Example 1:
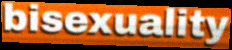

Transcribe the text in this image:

bisexuality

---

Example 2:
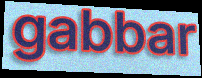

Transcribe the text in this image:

gabbar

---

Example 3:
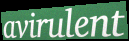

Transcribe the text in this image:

avirulent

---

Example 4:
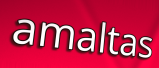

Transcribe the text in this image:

amaltas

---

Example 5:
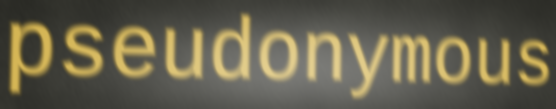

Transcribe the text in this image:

pseudonymous